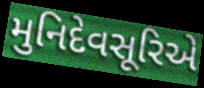
મુનિદેવસૂરિએ